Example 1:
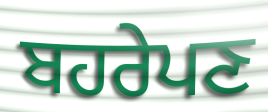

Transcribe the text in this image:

ਬਹਰੇਪਣ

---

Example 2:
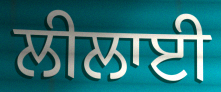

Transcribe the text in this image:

ਲੀਲਾਈ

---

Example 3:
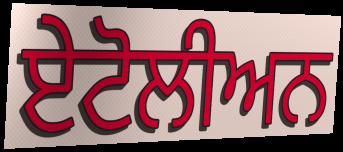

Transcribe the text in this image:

ਏਟੋਲੀਅਨ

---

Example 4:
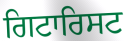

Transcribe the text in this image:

ਗਿਟਾਰਿਸਟ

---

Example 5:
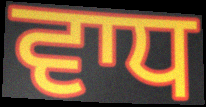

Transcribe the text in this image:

ਵਾਧ